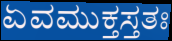
ಏವಮುಕ್ತಸ್ತತಃ